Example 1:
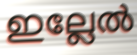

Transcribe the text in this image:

ഇല്ലേൽ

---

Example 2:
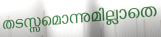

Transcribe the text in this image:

തടസ്സമൊന്നുമില്ലാതെ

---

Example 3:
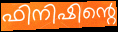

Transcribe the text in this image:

ഫിനിഷിന്റെ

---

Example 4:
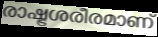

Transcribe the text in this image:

രാഷ്ട്രശരീരമാണ്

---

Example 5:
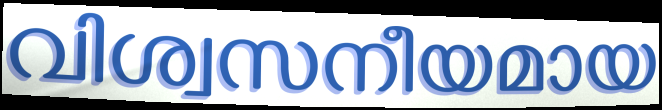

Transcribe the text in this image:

വിശ്വസനീയമായ